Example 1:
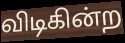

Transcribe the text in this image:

விடிகின்ற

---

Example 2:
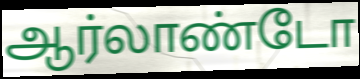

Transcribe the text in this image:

ஆர்லாண்டோ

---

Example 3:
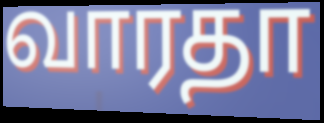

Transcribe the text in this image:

வாரதா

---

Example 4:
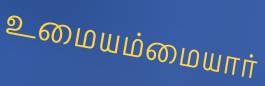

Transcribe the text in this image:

உமையம்மையார்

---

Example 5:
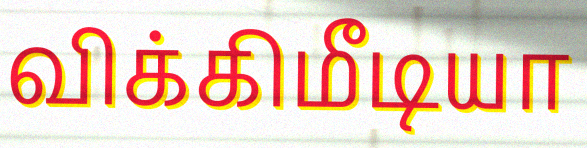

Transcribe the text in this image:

விக்கிமீடியா